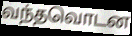
வந்தவொடன